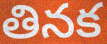
తినక